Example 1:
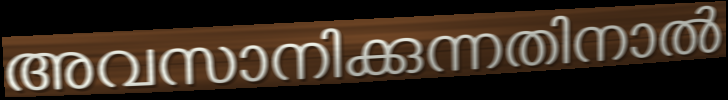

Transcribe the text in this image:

അവസാനിക്കുന്നതിനാൽ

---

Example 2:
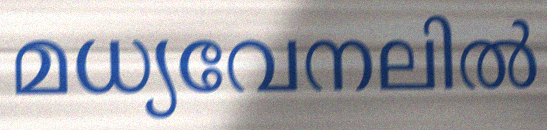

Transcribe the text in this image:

മധ്യവേനലിൽ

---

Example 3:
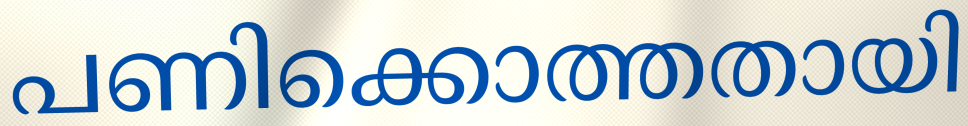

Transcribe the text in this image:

പണിക്കൊത്തതായി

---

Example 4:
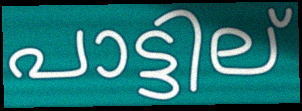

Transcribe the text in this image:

പാട്ടില്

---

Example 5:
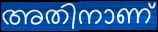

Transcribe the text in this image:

അതിനാണ്